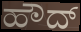
ಹೌದ್